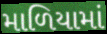
માળિયામાં